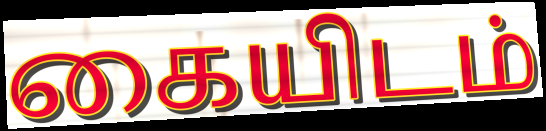
கையிடம்